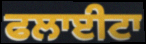
ਫਲਾਈਟਾ